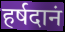
हर्षदानं